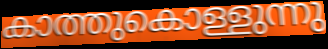
കാത്തുകൊള്ളുന്നു